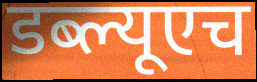
डब्ल्यूएच